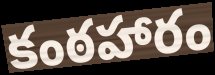
కంఠహారం